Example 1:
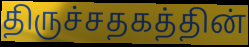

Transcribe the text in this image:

திருச்சதகத்தின்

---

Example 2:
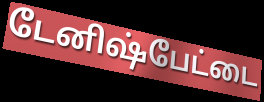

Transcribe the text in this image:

டேனிஷ்பேட்டை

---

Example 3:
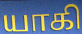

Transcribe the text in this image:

யாகி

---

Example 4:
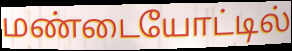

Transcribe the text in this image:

மண்டையோட்டில்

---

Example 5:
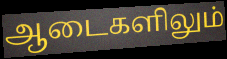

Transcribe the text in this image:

ஆடைகளிலும்